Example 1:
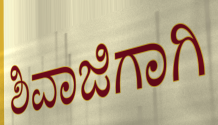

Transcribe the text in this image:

ಶಿವಾಜಿಗಾಗಿ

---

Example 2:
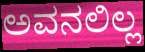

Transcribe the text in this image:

ಅವನಲಿಲ್ಲ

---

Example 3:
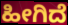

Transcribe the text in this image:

ಹೀಗಿದೆ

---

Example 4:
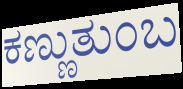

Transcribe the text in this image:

ಕಣ್ಣುತುಂಬ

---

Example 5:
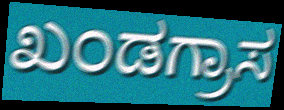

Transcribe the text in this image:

ಖಂಡಗ್ರಾಸ